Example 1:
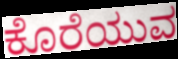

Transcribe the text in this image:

ಕೊರೆಯುವ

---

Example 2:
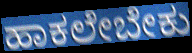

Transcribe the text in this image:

ಹಾಕಲೇಬೇಕು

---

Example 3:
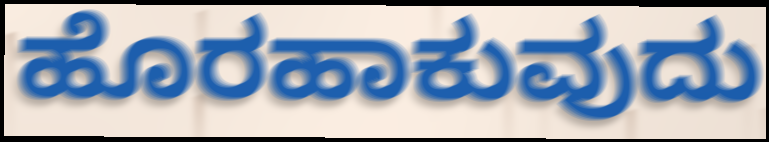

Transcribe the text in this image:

ಹೊರಹಾಕುವುದು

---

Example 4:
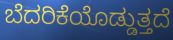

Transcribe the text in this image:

ಬೆದರಿಕೆಯೊಡ್ಡುತ್ತದೆ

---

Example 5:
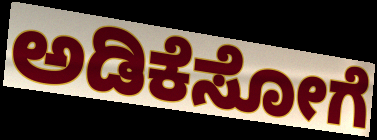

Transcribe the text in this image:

ಅಡಿಕೆಸೋಗೆ